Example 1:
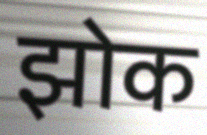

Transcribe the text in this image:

झोक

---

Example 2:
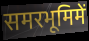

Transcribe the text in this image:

समरभूमिमें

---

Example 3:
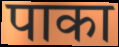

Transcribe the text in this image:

पाका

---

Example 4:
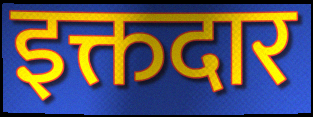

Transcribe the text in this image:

इक्तदार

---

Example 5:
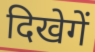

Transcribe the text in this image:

दिखेगें